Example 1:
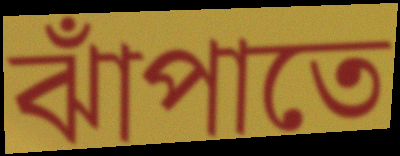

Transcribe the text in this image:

ঝাঁপাতে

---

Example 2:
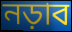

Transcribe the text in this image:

নড়াব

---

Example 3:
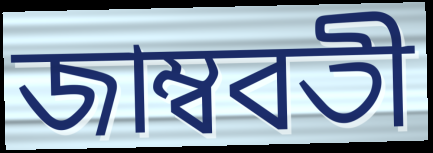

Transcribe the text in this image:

জাম্ববতী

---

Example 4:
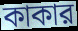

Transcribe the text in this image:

কাকার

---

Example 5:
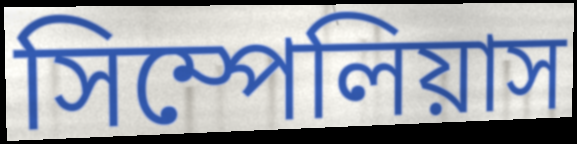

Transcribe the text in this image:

সিম্পেলিয়াস